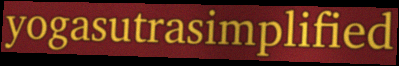
yogasutrasimplified